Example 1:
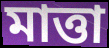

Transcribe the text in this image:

মাত্তা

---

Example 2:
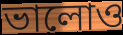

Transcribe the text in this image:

ভালোও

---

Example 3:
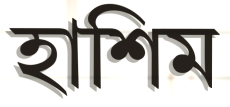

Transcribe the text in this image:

হাশিম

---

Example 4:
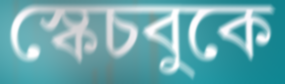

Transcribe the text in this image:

স্কেচবুকে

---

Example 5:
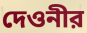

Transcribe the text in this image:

দেওনীর